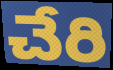
చేరి